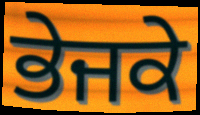
ਭੇਜਕੇ